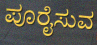
ಪೂರೈಸುವ